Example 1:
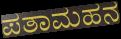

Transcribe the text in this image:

ಪತಾಮಹನ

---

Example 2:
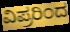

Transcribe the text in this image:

ವಿಪ್ರರಿಂದ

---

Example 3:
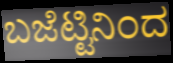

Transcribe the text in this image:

ಬಜೆಟ್ಟಿನಿಂದ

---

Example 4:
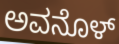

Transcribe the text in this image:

ಅವನೊಳ್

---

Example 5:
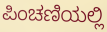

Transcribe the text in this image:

ಪಿಂಚಣಿಯಲ್ಲಿ